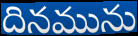
దినమును